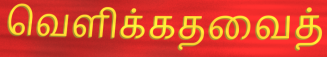
வெளிக்கதவைத்